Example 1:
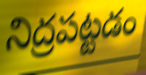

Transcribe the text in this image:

నిద్రపట్టడం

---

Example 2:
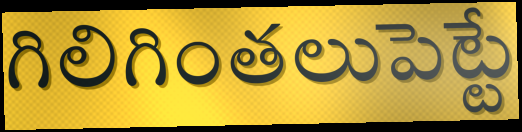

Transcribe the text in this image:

గిలిగింతలుపెట్టే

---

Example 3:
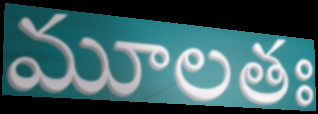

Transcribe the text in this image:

మూలతః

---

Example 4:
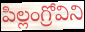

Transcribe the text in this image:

పిల్లంగ్రోవిని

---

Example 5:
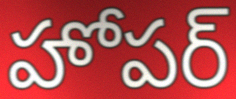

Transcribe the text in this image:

హోపర్